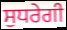
ਸੁਧਰੇਗੀ